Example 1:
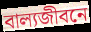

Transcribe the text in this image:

বাল্যজীবনে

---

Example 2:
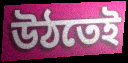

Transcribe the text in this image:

উঠতেই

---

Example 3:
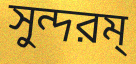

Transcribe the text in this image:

সুন্দরম্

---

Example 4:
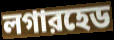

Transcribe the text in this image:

লগারহেড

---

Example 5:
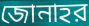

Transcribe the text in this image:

জোনাহর